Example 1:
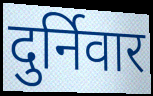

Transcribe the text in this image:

दुर्निवार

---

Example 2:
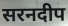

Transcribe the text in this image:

सरनदीप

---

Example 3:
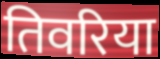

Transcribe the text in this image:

तिवरिया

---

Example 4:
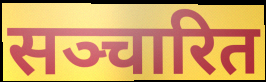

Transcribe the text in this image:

सञ्चारित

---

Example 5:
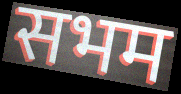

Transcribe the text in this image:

सभम